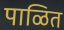
पाळित